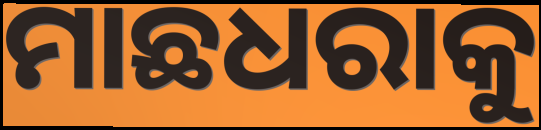
ମାଛଧରାକୁ